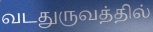
வடதுருவத்தில்